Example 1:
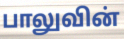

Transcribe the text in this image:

பாலுவின்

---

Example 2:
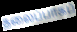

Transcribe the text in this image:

தலைப்பாகப்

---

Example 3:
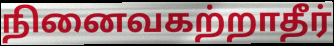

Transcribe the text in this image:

நினைவகற்றாதீர்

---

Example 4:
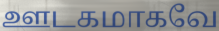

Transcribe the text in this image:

ஊடகமாகவே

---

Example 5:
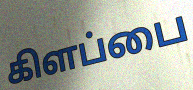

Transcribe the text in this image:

கிளப்பை